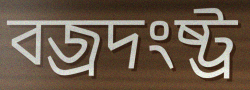
বজ্রদংষ্ট্র